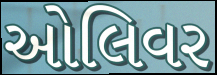
ઓલિવર